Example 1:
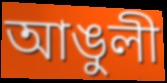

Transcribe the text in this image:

আঙুলী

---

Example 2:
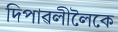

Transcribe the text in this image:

দিপাৱলীলৈকে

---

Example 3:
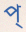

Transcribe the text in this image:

প্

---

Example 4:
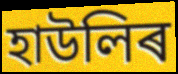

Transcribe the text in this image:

হাউলিৰ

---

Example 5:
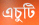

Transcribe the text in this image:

এচুটি